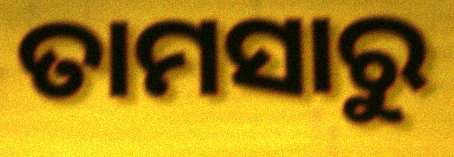
ତାମସାରୁ